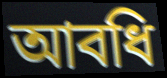
আবধি